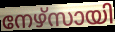
നേഴ്സായി